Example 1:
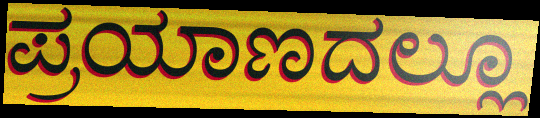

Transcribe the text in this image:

ಪ್ರಯಾಣದಲ್ಲೂ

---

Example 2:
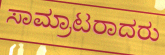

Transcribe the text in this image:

ಸಾಮ್ರಾಟರಾದರು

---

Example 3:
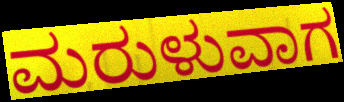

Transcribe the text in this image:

ಮರುಳುವಾಗ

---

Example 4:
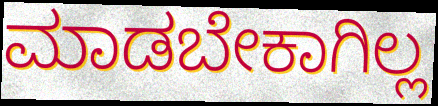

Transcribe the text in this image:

ಮಾಡಬೇಕಾಗಿಲ್ಲ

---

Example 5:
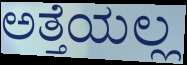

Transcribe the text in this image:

ಅತ್ತೆಯಲ್ಲ